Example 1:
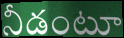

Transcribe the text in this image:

నీడంటూ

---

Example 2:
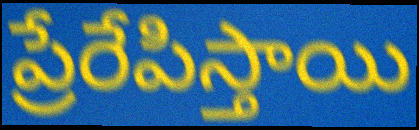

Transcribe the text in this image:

ప్రేరేపిస్తాయి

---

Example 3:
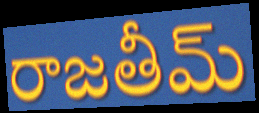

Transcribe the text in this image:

రాజతీమ్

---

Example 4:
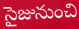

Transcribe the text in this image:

సైజునుంచి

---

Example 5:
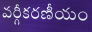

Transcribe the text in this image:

వర్గీకరణీయం